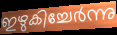
ഇഴുകിച്ചേർന്നു